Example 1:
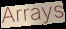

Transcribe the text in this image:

Arrays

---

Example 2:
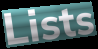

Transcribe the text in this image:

Lists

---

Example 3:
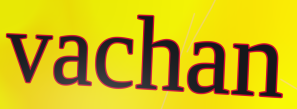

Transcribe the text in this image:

vachan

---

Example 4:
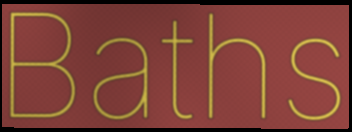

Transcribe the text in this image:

Baths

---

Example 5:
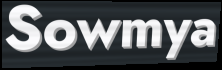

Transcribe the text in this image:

Sowmya